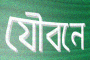
যৌবনে